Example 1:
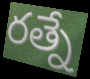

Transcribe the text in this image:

రత్నే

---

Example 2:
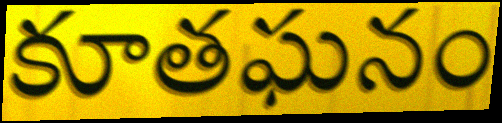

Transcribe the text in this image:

కూతఘనం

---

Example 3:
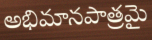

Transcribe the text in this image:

అభిమానపాత్రమై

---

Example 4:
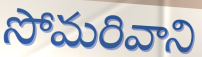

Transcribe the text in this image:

సోమరివాని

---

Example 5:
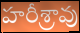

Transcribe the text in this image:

హరీశ్రావు